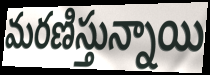
మరణిస్తున్నాయి